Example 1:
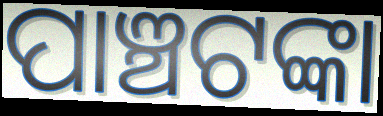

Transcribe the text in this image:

ପାଞ୍ଚଟଙ୍କା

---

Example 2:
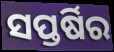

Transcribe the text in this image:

ସପ୍ତର୍ଷିର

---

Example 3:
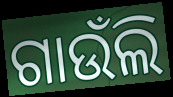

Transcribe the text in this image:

ଗାଉଁଲି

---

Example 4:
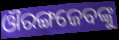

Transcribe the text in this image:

ଔରଙ୍ଗଜେବଙ୍କୁ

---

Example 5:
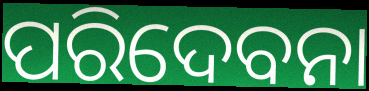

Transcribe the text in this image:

ପରିଦେବନା